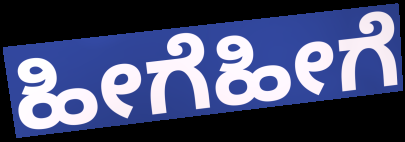
ಹೀಗೆಹೀಗೆ